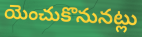
యెంచుకొనునట్లు